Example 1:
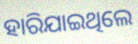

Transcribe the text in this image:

ହାରିଯାଇଥିଲେ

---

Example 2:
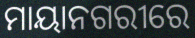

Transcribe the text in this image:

ମାୟାନଗରୀରେ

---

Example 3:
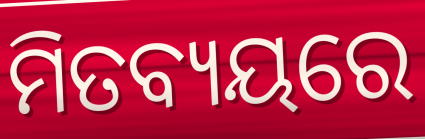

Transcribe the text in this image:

ମିତବ୍ୟୟରେ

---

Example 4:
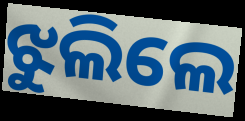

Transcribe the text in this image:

ଝୁଲିଲେ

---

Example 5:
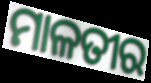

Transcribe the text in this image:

ମାଳତୀର